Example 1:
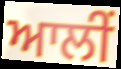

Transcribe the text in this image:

ਆਲੀਂ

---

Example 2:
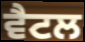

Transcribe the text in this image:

ਵੈਟਲ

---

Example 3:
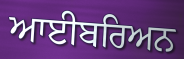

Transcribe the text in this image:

ਆਈਬਰਿਅਨ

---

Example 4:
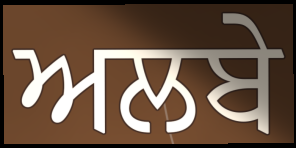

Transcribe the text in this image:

ਅਲਬੇ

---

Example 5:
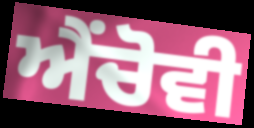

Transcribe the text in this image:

ਐਂਚੋਵੀ